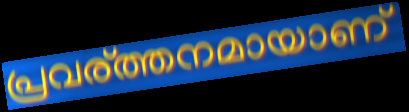
പ്രവര്ത്തനമായാണ്